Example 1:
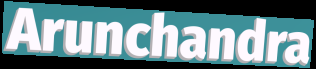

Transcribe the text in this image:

Arunchandra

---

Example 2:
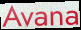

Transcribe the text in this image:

Avana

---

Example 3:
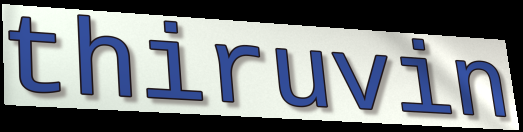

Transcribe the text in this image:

thiruvin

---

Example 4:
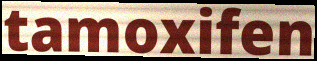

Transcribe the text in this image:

tamoxifen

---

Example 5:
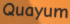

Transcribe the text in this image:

Quayum